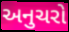
અનુચરો